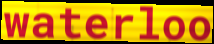
waterloo